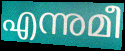
എന്നുമീ